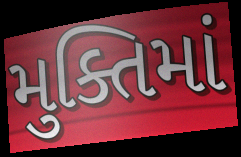
મુક્તિમાં